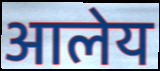
आलेय